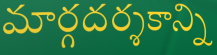
మార్గదర్శకాన్ని